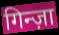
गिन्ज़ा